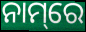
ନାମ୍‌ରେ